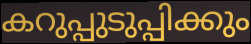
കറുപ്പുടുപ്പിക്കും